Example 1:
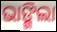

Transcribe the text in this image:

ଭାଙ୍ଗିଲା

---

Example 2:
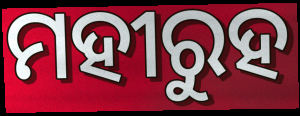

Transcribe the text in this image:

ମହୀରୁହ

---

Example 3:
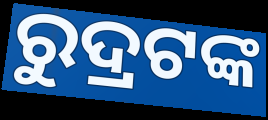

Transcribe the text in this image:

ରୁଦ୍ରଟଙ୍କ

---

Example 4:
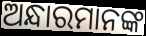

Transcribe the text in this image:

ଅନ୍ଧାରମାନଙ୍କ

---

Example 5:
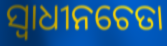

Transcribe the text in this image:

ସ୍ବାଧୀନଚେତା